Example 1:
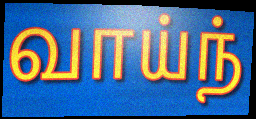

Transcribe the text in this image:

வாய்ந்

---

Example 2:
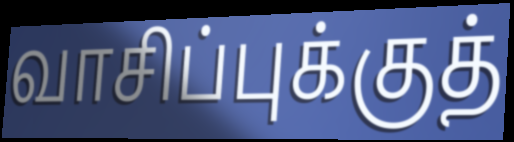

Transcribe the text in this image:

வாசிப்புக்குத்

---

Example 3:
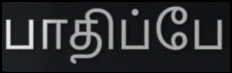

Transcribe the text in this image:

பாதிப்பே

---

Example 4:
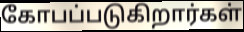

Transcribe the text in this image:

கோபப்படுகிறார்கள்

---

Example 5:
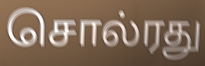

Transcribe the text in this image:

சொல்ரது